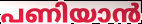
പണിയാൻ